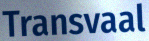
Transvaal